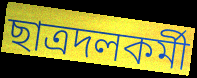
ছাত্রদলকর্মী